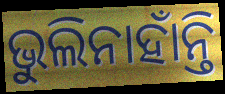
ଭୁଲିନାହାଁନ୍ତି